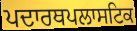
ਪਦਾਰਥਪਲਾਸਟਿਕ